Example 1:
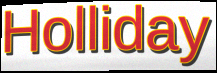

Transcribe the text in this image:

Holliday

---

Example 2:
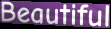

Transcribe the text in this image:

Beautiful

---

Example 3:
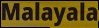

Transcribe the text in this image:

Malayala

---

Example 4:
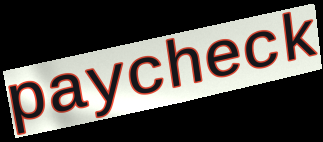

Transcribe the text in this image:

paycheck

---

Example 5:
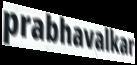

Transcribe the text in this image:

prabhavalkar